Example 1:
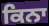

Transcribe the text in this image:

ਕਿਨਾ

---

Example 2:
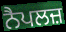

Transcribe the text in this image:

ਨੈਪਲਜ਼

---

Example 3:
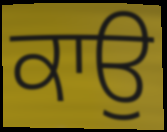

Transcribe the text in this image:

ਕਾਉ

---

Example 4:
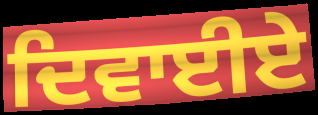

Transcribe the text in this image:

ਦਿਵਾਈਏ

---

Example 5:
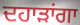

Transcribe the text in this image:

ਦਹਾੜਾਂਗਾ